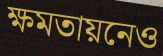
ক্ষমতায়নেও